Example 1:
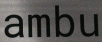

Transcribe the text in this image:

ambu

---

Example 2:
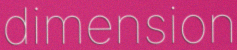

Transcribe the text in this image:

dimension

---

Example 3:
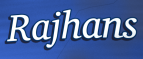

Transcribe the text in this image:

Rajhans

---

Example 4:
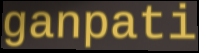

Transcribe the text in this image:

ganpati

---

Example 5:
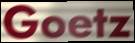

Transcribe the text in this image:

Goetz